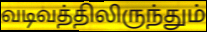
வடிவத்திலிருந்தும்